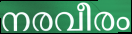
നരവീരം